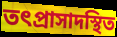
তৎপ্রাসাদস্থিত